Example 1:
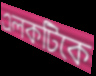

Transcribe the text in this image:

এলকটিকে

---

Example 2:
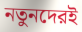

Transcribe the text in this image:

নতুনদেরই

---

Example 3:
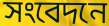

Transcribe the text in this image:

সংবেদনে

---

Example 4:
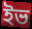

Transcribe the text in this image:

ইভ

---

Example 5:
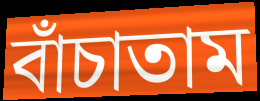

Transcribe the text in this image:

বাঁচাতাম